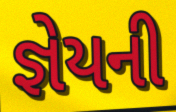
જ્ઞેયની